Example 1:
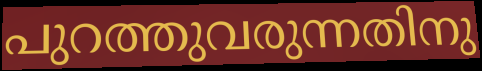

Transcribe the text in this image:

പുറത്തുവരുന്നതിനു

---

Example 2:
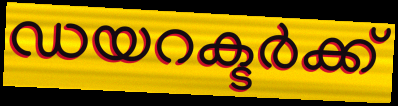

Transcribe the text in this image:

ഡയറക്ടർക്ക്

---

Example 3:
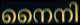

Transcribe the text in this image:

നൈനി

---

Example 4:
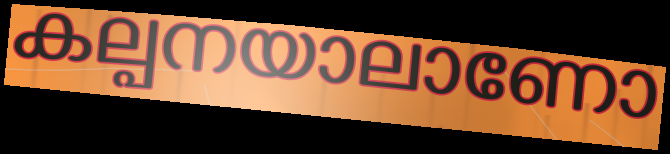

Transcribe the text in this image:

കല്പനയാലാണോ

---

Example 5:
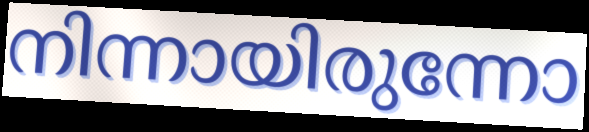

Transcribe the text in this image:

നിന്നായിരുന്നോ